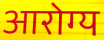
आरोग्य